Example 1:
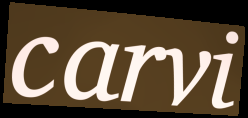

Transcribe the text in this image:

carvi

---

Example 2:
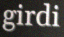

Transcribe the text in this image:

girdi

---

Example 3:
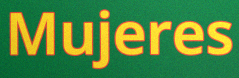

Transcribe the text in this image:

Mujeres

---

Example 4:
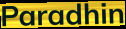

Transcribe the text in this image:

Paradhin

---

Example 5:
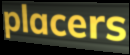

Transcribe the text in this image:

placers